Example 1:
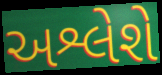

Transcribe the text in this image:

અશ્લેશે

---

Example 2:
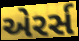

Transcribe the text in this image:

એરર્સ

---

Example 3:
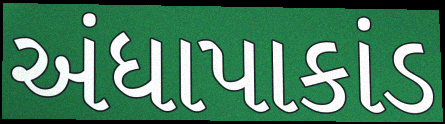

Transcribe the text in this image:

અંધાપાકાંડ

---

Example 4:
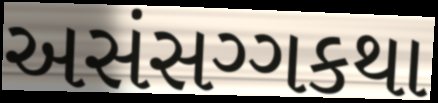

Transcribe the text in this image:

અસંસગ્ગકથા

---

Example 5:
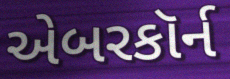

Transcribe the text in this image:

એબરકૉર્ન